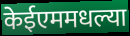
केईएममधल्या